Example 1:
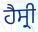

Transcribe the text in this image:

ਹੈਸ੍ਰੀ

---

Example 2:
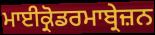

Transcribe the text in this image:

ਮਾਈਕ੍ਰੋਡਰਮਾਬ੍ਰੇਜ਼ਨ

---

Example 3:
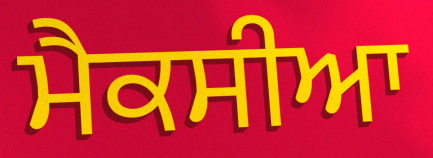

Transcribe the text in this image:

ਮੈਕਸੀਆ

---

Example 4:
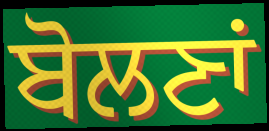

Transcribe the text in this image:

ਬੋਲਣਾਂ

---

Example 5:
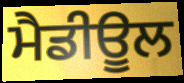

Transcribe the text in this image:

ਮੈਡੀਊਲ